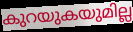
കുറയുകയുമില്ല